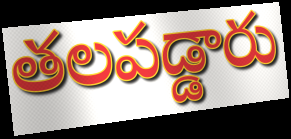
తలపడ్డారు